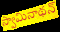
స్వామినాథన్